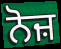
ਨੋਜ਼